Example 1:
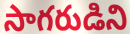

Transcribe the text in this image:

సాగరుడిని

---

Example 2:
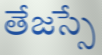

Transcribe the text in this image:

తేజస్సే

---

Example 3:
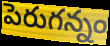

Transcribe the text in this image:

పెరుగన్నం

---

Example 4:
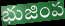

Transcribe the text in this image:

భుజింప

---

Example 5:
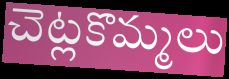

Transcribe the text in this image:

చెట్లకొమ్మలు